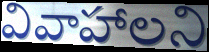
వివాహాలని